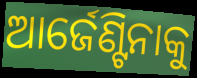
ଆର୍ଜେଣ୍ଟିନାକୁ